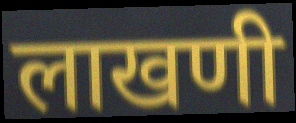
लाखणी